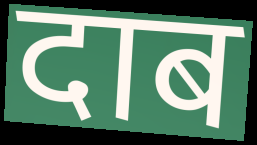
दाब